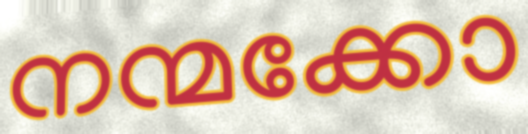
നന്മക്കോ